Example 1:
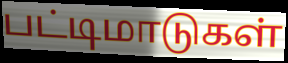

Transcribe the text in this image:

பட்டிமாடுகள்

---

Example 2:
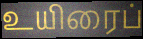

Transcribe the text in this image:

உயிரைப்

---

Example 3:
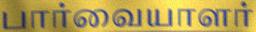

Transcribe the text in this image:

பார்வையாளர்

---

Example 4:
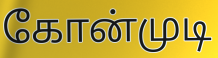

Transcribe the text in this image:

கோன்முடி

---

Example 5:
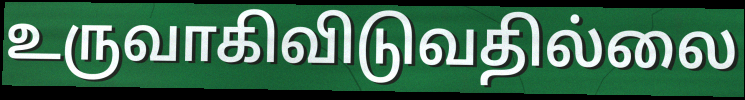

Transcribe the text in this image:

உருவாகிவிடுவதில்லை